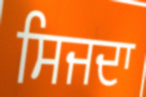
ਸਿਜਦਾ